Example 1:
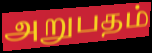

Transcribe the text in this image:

அறுபதம்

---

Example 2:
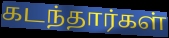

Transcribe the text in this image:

கடந்தார்கள்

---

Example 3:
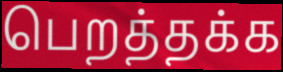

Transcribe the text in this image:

பெறத்தக்க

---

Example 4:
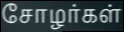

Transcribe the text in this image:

சோழர்கள்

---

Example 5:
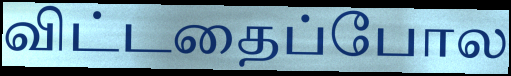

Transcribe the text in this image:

விட்டதைப்போல